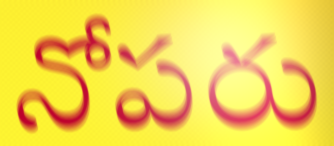
నోపరు